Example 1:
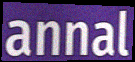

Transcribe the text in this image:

annal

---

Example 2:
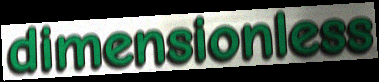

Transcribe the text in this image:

dimensionless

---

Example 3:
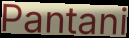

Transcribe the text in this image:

Pantani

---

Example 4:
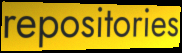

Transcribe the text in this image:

repositories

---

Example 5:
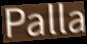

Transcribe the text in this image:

Palla